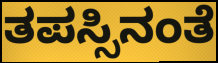
ತಪಸ್ಸಿನಂತೆ